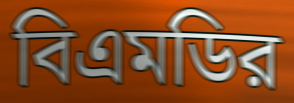
বিএমডির